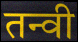
तन्वी